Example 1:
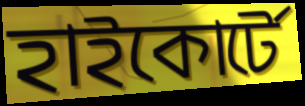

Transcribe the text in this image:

হাইকোর্টে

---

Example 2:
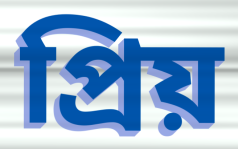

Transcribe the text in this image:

প্রিয়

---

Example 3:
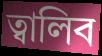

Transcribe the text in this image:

ত্বালিব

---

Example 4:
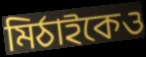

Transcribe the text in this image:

মিঠাইকেও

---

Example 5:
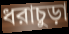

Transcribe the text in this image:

ধরাচুড়া